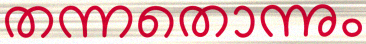
തന്നതൊന്നും